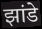
झांडे